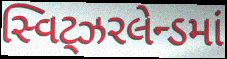
સ્વિટ્ઝરલેન્ડમાં